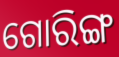
ଗୋରିଙ୍ଗ